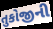
તુકોજીની